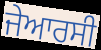
ਜੇਆਰਸੀ